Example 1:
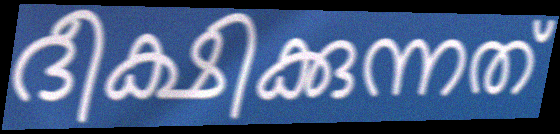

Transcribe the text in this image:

ദീക്ഷിക്കുന്നത്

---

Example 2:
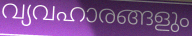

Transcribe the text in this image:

വ്യവഹാരങ്ങളും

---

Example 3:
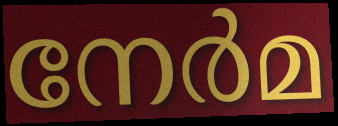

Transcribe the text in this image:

നേർമ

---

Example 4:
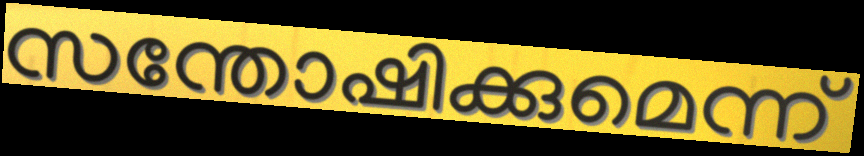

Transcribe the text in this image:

സന്തോഷിക്കുമെന്ന്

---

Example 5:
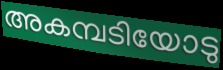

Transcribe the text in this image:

അകമ്പടിയോടു